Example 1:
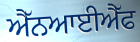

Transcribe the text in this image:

ਐੱਨਆਈਐੱਫ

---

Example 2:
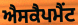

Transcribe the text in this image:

ਐਸਕੈਪਮੈਂਟ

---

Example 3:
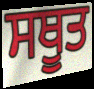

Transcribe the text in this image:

ਸਥੂਤ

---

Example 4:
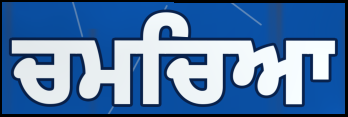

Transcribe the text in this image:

ਚਮਚਿਆ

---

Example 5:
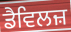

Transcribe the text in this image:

ਡੈਵਿਲਜ਼